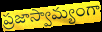
ప్రజాస్వామ్యంగా